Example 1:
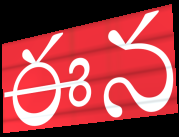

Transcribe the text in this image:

ఈన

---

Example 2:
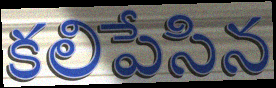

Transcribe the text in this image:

కలిపేసిన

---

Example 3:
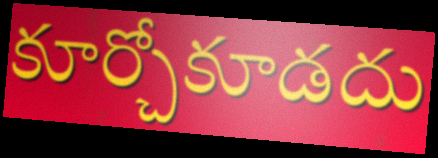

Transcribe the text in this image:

కూర్చోకూడదు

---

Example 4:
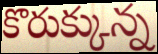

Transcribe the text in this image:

కొరుక్కున్న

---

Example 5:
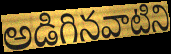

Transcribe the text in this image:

అడిగినవాటిని